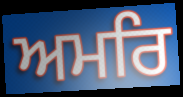
ਅਮਰਿ